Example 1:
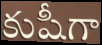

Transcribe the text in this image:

కుషీగా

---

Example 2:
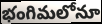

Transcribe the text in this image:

భంగిమలోనూ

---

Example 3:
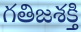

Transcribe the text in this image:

గతిజశక్తి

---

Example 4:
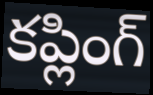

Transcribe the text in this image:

కప్లింగ్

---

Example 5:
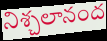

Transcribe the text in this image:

నిశ్చలానంద